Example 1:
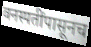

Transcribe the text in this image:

वनस्पतींपासूनच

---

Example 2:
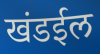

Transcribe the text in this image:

खंडईल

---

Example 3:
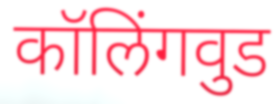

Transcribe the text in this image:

कॉलिंगवुड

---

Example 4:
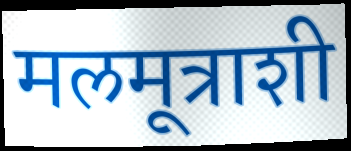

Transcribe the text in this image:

मलमूत्राशी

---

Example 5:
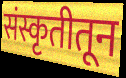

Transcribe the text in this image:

संस्कृतीतून